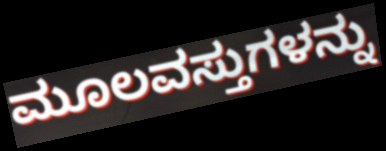
ಮೂಲವಸ್ತುಗಳನ್ನು